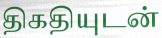
திகதியுடன்